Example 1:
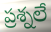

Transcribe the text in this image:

ప్రశ్నలే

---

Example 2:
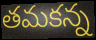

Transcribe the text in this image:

తమకన్న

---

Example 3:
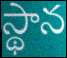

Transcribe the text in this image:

స్థాన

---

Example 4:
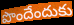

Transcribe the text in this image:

పొందేందుకు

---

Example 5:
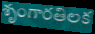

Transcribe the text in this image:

శృంగారతిలక